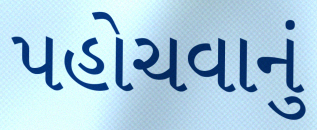
પહોચવાનું